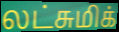
லட்சுமிக்